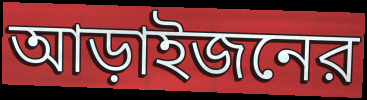
আড়াইজনের